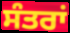
ਸੰਤਰਾਂ